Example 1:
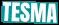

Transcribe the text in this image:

TESMA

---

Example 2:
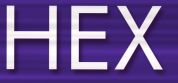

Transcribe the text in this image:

HEX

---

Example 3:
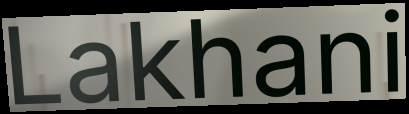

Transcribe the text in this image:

Lakhani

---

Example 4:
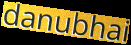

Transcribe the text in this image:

danubhai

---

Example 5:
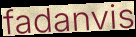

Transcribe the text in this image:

fadanvis